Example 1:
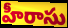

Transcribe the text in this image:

హీరాసు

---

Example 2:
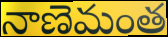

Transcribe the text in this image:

నాణెమంత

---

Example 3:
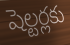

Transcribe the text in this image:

షెల్టర్లకు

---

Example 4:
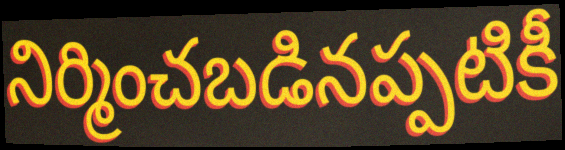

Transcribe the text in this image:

నిర్మించబడినప్పటికీ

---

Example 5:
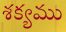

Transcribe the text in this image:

శక్యము